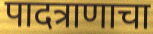
पादत्राणाचा